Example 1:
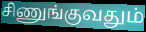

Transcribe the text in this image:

சிணுங்குவதும்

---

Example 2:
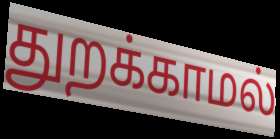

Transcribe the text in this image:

துறக்காமல்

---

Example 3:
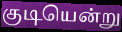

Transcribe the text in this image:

குடியென்று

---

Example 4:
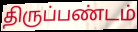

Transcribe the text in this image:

திருப்பண்டம்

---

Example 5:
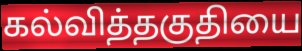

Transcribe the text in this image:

கல்வித்தகுதியை